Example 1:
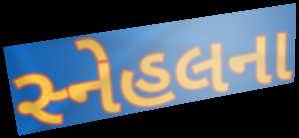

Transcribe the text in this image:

સ્નેહલના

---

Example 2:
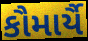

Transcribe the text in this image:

કૌમાર્યૈ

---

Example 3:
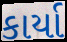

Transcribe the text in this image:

કાર્યા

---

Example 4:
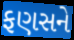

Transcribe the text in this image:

ફણસને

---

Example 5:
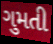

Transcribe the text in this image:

ગુમતી